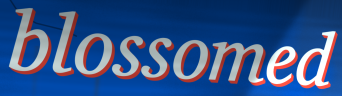
blossomed